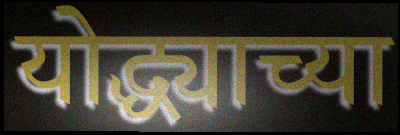
योद्ध्याच्या